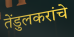
तेंडुलकरांचे